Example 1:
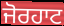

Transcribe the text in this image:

ਜੋਰਹਾਟ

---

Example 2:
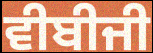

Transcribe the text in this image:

ਵੀਬੀਜੀ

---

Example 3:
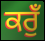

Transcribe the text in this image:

ਕਰੁਁ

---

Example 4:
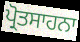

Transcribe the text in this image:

ਪ੍ਰੋਤਸਾਹਨਾ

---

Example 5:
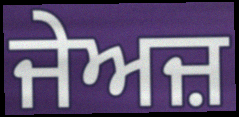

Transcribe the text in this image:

ਜੇਅਜ਼